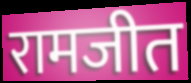
रामजीत